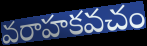
వరాహకవచం